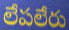
లేపలేరు